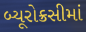
બ્યૂરોક્રસીમાં